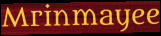
Mrinmayee